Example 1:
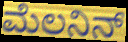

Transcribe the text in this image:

ಮೆಲನಿನ್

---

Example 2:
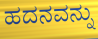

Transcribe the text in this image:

ಹದನವನ್ನು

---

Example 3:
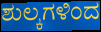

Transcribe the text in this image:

ಶುಲ್ಕಗಳಿಂದ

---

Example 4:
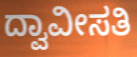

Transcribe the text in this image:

ದ್ವಾವೀಸತಿ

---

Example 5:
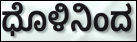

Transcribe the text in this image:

ಧೊಳಿನಿಂದ